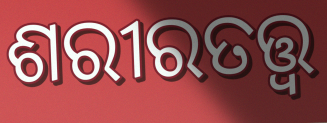
ଶରୀରତତ୍ତ୍ୱ